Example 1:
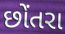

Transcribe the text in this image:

છોંતરા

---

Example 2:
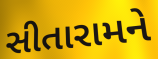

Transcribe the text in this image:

સીતારામને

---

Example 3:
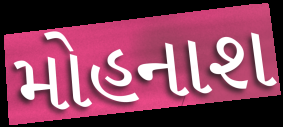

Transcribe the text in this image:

મોહનાશ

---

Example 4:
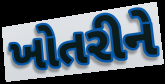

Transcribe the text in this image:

ખોતરીને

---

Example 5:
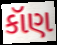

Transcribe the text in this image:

કૉણ